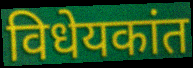
विधेयकांत